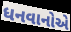
ધનવાનોએ